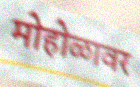
मोहोळावर